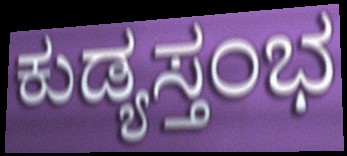
ಕುಡ್ಯಸ್ತಂಭ